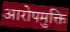
आरोपमुक्ति